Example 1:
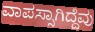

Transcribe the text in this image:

ವಾಪಸ್ಸಾಗಿದ್ದೆವು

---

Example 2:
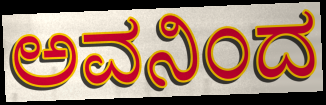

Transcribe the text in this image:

ಅವನಿಂದ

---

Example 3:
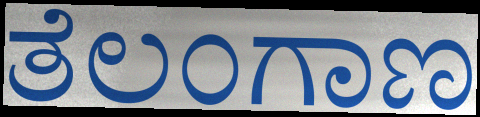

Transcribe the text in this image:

ತೆಲಂಗಾಣ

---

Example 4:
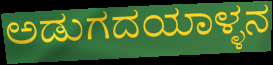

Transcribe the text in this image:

ಅಡುಗದಯಾಳ್ಳನ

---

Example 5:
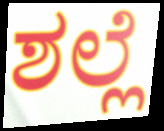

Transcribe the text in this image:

ಶಲ್ಲೆ